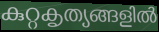
കുറ്റകൃത്യങ്ങളിൽ